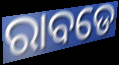
ରାବଡେ